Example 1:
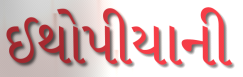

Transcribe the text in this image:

ઈથોપીયાની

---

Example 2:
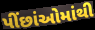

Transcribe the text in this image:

પીંછાંઓમાંથી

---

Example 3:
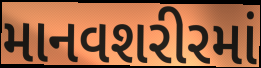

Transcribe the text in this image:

માનવશરીરમાં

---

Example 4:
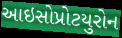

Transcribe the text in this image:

આઇસોપ્રોટયુરોન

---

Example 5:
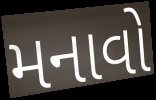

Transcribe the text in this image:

મનાવો